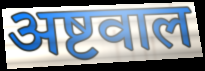
अष्टवाल